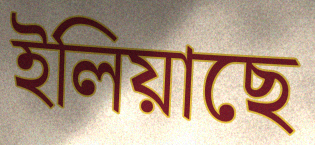
ইলিয়াছে